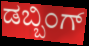
ಡಬ್ಬಿಂಗ್